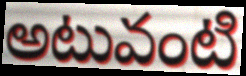
అటువంటి